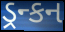
ડ્રન્કન